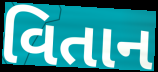
વિતાન